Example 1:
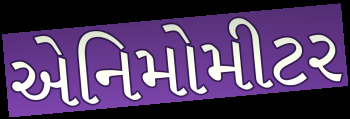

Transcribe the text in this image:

એનિમોમીટર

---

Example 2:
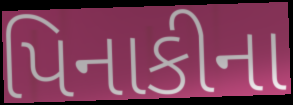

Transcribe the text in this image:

પિનાકીના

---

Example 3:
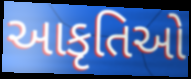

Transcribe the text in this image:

આકૃતિઓ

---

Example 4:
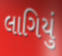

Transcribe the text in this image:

લાગિયું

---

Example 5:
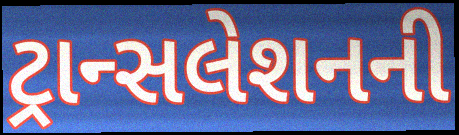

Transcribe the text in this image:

ટ્રાન્સલેશનની